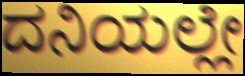
ದನಿಯಲ್ಲೇ